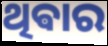
ଥିଵାର